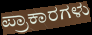
ಪ್ರಾಕಾರಗಳು